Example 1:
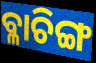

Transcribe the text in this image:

ବ୍ଳାଚିଙ୍ଗ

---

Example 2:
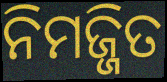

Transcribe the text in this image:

ନିମଜ୍ଜିତ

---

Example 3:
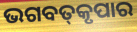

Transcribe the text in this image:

ଭଗବତ୍‌କୃପାର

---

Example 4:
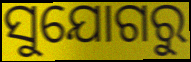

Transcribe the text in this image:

ସୁଯୋଗରୁ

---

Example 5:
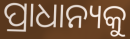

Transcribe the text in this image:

ପ୍ରାଧାନ୍ୟକୁ